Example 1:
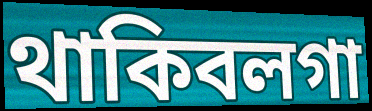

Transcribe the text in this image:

থাকিবলগা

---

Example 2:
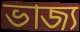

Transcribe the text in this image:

ভাজ্য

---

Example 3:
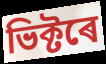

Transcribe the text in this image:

ভিক্টৰে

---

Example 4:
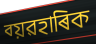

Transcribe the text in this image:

ব্য়ৱহাৰিক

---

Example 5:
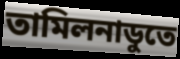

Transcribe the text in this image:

তামিলনাডুতে